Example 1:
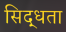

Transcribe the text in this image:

सिद्धता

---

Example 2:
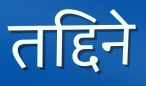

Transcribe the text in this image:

तद्दिने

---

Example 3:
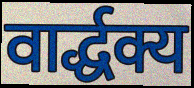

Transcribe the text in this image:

वार्द्धक्य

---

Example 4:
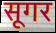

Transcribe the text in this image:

सूगर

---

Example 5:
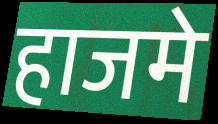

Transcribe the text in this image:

हाजमे